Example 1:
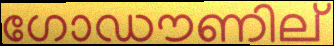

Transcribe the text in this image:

ഗോഡൗണില്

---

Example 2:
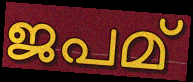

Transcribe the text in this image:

ജപമ്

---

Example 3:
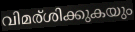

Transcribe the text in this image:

വിമര്ശിക്കുകയും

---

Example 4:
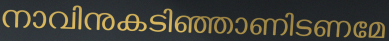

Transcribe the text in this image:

നാവിനുകടിഞ്ഞാണിടണമേ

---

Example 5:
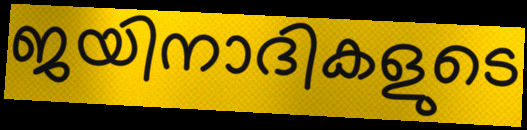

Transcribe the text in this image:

ജയിനാദികളുടെ